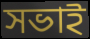
সভাই